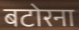
बटोरना